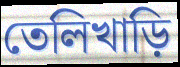
তেলিখাড়ি